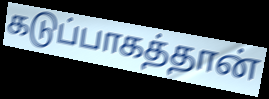
கடுப்பாகத்தான்